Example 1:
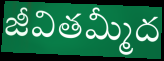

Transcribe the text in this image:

జీవితమ్మీద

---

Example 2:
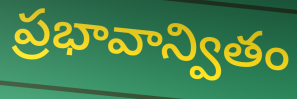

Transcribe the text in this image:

ప్రభావాన్వితం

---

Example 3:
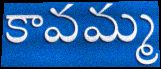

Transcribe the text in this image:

కావమ్మ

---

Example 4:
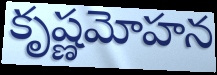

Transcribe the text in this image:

కృష్ణమోహన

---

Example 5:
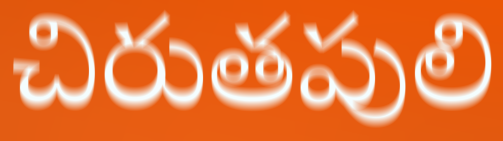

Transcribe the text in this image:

చిరుతపులి